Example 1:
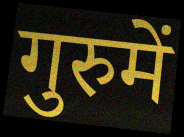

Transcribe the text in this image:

गुरुमें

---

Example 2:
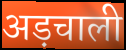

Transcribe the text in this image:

अड़चाली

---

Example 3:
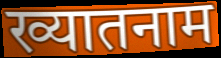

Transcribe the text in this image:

ख्यातनाम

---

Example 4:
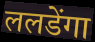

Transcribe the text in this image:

ललडेंगा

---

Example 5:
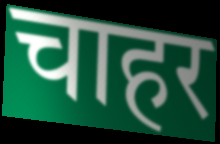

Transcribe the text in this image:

चाहर